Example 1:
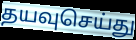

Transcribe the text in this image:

தயவுசெய்து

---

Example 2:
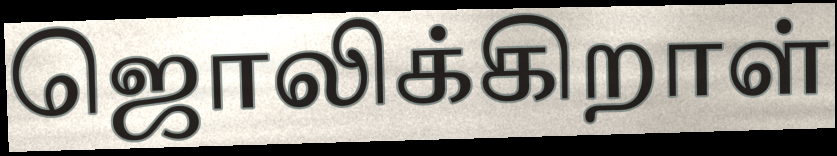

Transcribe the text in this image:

ஜொலிக்கிறாள்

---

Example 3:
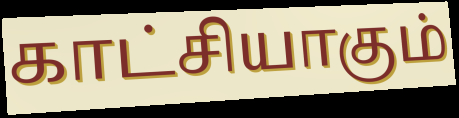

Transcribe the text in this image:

காட்சியாகும்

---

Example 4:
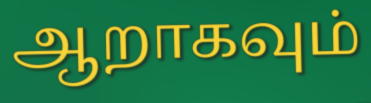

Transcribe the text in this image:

ஆறாகவும்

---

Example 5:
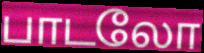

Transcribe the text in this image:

பாடலோ